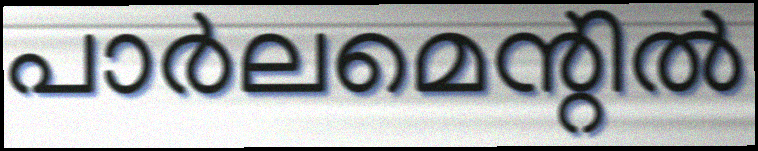
പാർലമെന്റിൽ